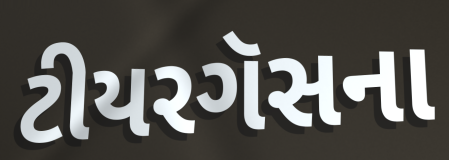
ટીયરગૅસના